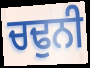
ਚਢੁਨੀ